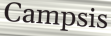
Campsis